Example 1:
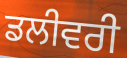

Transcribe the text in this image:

ਡਲੀਵਰੀ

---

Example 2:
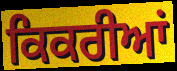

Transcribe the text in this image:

ਕਿਕਰੀਆਂ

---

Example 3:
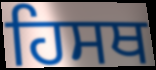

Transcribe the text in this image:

ਹਿਸਥ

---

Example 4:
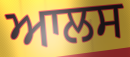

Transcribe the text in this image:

ਆਲਸ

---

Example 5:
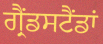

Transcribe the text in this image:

ਗ੍ਰੈਂਡਸਟੈਂਡਾਂ